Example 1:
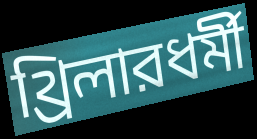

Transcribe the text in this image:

থ্রিলারধর্মী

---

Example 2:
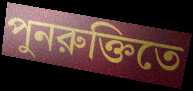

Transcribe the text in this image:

পুনরুক্তিতে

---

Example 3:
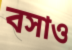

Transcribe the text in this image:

বসাও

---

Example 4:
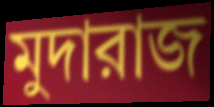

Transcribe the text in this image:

মুদারাজ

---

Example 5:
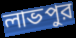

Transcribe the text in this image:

লাভপুর